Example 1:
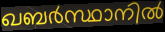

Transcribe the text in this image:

ഖബർസ്ഥാനിൽ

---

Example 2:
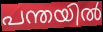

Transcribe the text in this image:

പന്തയിൽ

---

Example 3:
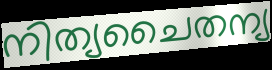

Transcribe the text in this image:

നിത്യചൈതന്യ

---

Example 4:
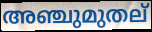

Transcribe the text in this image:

അഞ്ചുമുതല്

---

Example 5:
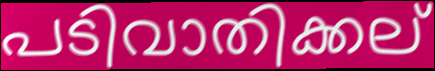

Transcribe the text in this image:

പടിവാതിക്കല്